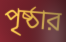
পৃষ্ঠার